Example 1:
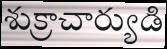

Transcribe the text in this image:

శుక్రాచార్యుడి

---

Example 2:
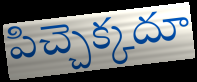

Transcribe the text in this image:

పిచ్చెక్కదూ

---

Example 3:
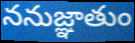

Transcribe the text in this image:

ననుజ్ఞాతుం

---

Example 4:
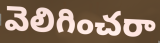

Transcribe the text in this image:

వెలిగించరా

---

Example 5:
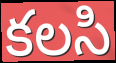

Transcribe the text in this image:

కలసి